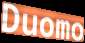
Duomo